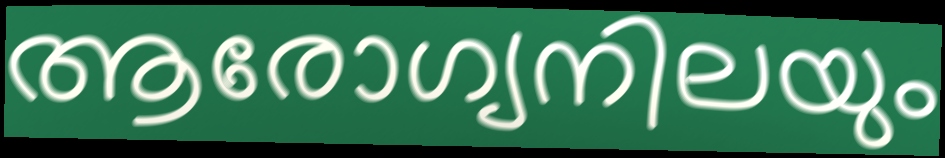
ആരോഗ്യനിലയും